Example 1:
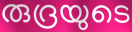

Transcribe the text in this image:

രുദ്രയുടെ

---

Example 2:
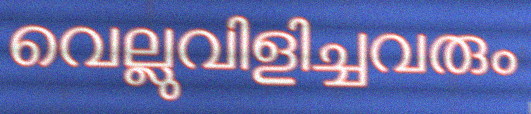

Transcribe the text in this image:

വെല്ലുവിളിച്ചവരും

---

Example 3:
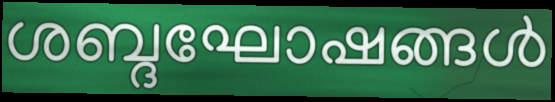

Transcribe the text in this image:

ശബ്ദഘോഷങ്ങൾ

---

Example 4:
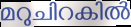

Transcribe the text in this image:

മറുചിറകിൽ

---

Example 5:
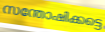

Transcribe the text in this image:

സന്തോഷിക്കട്ടെ